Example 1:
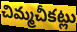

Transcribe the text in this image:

చిమ్మచీకట్లు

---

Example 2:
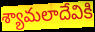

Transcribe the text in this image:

శ్యామలాదేవికి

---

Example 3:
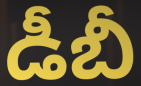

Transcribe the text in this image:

డీబీ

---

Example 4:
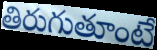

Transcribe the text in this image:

తిరుగుతూంటే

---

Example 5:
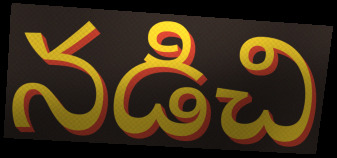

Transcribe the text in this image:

నడిచి